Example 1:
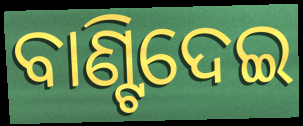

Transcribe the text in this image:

ବାଣ୍ଟିଦେଇ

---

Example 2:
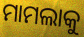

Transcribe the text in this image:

ମାମଲାକୁ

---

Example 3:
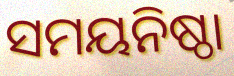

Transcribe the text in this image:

ସମୟନିଷ୍ଠା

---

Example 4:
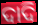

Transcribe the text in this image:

ଦାଦି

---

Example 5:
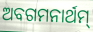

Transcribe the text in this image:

ଅବଗମନାର୍ଥମ୍